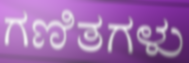
ಗಣಿತಗಳು